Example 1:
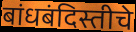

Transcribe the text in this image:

बांधबंदिस्तीचे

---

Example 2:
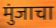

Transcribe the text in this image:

मुंजाचा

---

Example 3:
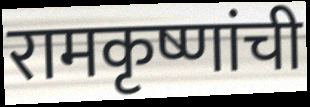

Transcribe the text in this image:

रामकृष्णांची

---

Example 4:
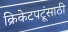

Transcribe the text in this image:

क्रिकेटपटूंसाठी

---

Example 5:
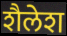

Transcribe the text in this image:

शैलेश